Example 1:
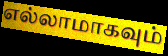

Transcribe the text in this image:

எல்லாமாகவும்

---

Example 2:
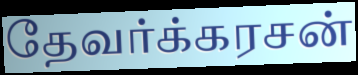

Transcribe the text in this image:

தேவர்க்கரசன்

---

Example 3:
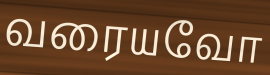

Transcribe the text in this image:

வரையவோ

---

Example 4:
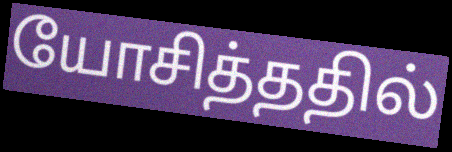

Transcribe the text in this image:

யோசித்ததில்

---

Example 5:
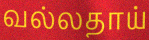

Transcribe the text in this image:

வல்லதாய்